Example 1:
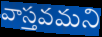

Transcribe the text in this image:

వాస్తవమని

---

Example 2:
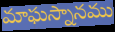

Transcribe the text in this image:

మాఘస్నానము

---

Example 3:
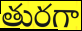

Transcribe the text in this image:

తురగా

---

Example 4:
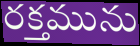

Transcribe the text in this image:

రక్తమును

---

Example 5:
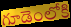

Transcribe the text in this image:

గూడెంలోకి